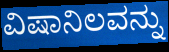
ವಿಷಾನಿಲವನ್ನು